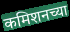
कमिशनच्या